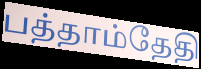
பத்தாம்தேதி